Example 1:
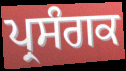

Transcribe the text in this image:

ਪ੍ਰਸੰਗਕ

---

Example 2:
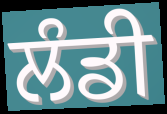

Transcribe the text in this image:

ਲੰਡੀ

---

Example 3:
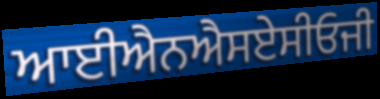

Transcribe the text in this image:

ਆਈਐਨਐਸਏਸੀਓਜੀ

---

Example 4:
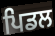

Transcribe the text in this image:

ਪਿਡਲ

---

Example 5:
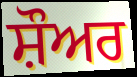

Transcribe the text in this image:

ਸ਼ੌਅਰ